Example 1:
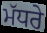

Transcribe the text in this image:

ਮੱਧਰੇ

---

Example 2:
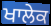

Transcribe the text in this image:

ਖਾਲੇਕ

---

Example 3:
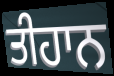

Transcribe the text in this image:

ਤੀਹਾਨ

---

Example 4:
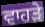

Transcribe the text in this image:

ਵਾਹੜੇ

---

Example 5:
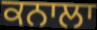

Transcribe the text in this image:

ਕਨਾਲਾ